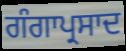
ਗੰਗਾਪ੍ਰਸਾਦ